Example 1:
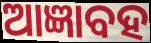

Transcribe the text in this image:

ଆଜ୍ଞାବହ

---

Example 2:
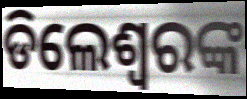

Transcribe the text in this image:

ଡିଲେଶ୍ଵରଙ୍କ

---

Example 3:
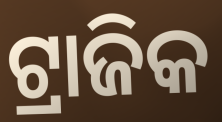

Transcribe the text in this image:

ଟ୍ରାଜିକ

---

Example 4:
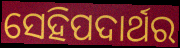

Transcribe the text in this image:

ସେହିପଦାର୍ଥର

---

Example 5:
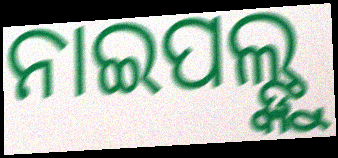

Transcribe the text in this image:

ନାଇପଲ୍ଙ୍କୁ